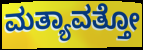
ಮತ್ಯಾವತ್ತೋ